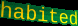
habited